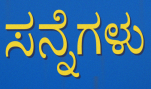
ಸನ್ನೆಗಳು